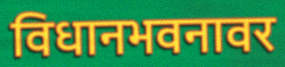
विधानभवनावर